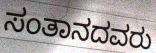
ಸಂತಾನದವರು